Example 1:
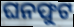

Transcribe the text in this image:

ଘନଫୁଟ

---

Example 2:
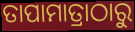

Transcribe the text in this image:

ତାପାମାତ୍ରାଠାରୁ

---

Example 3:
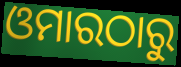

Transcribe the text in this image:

ଓମାରଠାରୁ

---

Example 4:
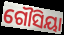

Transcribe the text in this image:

ଗୌସିୟା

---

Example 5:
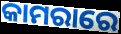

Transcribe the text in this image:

କାମରାରେ